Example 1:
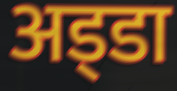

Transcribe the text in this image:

अड्‍डा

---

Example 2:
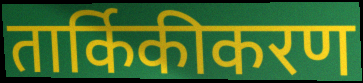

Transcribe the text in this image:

तार्किकीकरण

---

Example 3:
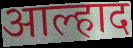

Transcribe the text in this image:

आल्हाद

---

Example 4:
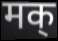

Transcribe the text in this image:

मक्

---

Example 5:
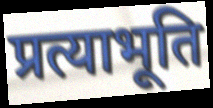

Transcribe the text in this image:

प्रत्याभूति